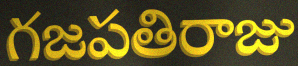
గజపతిరాజు